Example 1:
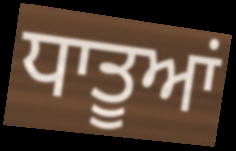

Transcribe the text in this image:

ਧਾਤੂਆਂ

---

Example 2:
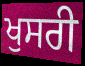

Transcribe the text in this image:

ਖੁਸਰੀ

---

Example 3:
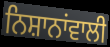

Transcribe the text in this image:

ਨਿਸ਼ਾਨਾਂਵਾਲੀ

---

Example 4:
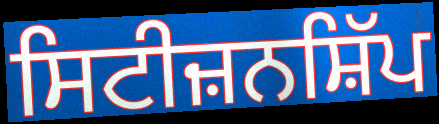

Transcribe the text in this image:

ਸਿਟੀਜ਼ਨਸ਼ਿੱਪ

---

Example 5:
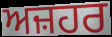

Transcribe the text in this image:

ਅਜ਼ਹਰ